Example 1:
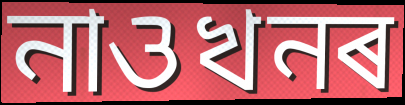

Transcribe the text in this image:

নাওখনৰ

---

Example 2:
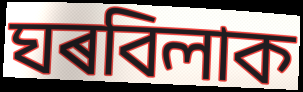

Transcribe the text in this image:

ঘৰবিলাক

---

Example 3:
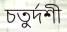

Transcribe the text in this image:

চতুৰ্দশী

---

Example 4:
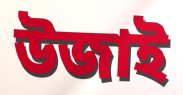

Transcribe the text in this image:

উজাই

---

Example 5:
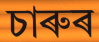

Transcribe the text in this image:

চাৰুৰ